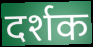
दर्शक